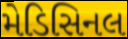
મેડિસિનલ